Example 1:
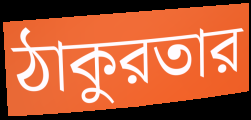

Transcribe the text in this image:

ঠাকুরতার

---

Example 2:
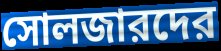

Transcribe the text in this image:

সোলজারদের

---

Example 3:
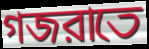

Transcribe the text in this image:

গজরাতে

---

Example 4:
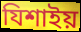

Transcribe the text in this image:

যিশাইয়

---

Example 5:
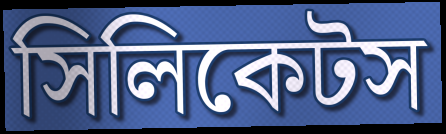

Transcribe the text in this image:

সিলিকেটস